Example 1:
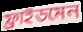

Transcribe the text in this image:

ফ্ৰাইডমেন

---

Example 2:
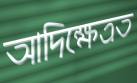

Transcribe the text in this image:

আদিক্ষেত্ৰত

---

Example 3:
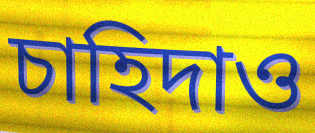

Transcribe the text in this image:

চাহিদাও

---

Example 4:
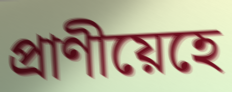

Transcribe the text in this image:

প্ৰাণীয়েহে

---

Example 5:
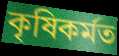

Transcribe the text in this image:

কৃষিকৰ্মত